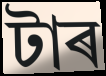
টাৰ